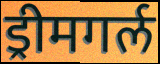
ड्रीमगर्ल